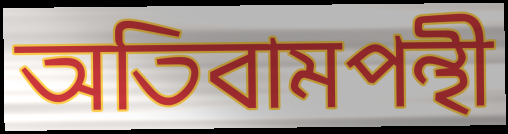
অতিবামপন্থী